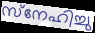
സ്‌നേഹിച്ചു